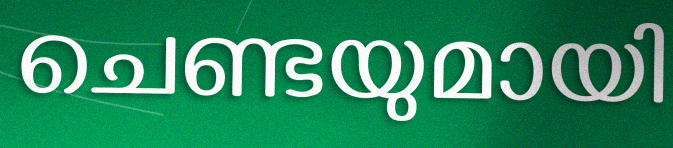
ചെണ്ടയുമായി